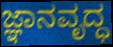
ಜ್ಞಾನವೃದ್ಧ